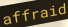
affraid